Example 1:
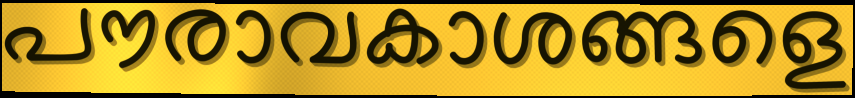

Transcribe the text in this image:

പൗരാവകാശങ്ങളെ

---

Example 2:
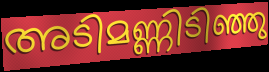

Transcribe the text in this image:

അടിമണ്ണിടിഞ്ഞു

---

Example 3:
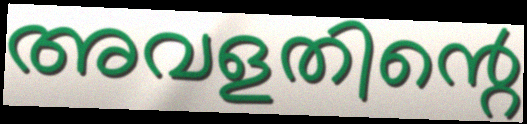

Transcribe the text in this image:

അവളതിന്റെ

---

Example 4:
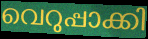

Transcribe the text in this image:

വെറുപ്പാക്കി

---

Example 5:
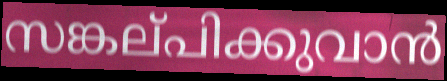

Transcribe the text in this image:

സങ്കല്‌പിക്കുവാൻ